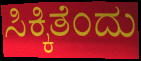
ಸಿಕ್ಕಿತೆಂದು